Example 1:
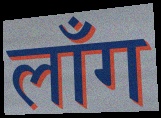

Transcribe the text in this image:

लाँग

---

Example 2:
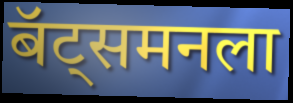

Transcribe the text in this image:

बॅट्समनला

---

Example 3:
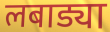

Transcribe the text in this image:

लबाड्या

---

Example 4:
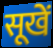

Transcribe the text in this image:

सूखें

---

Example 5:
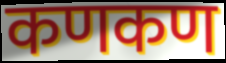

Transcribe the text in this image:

कणकण